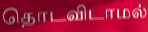
தொடவிடாமல்